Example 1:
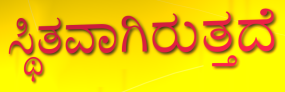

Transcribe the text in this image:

ಸ್ಥಿತವಾಗಿರುತ್ತದೆ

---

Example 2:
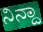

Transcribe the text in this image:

ನಿನ್ದಾ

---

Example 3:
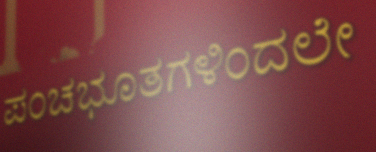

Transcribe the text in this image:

ಪಂಚಭೂತಗಳಿಂದಲೇ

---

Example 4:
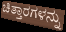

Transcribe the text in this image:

ಚಿತ್ತಾರಗಳನ್ನು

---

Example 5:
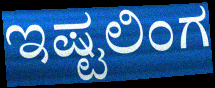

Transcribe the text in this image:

ಇಷ್ಟಲಿಂಗ